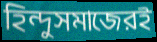
হিন্দুসমাজেরই